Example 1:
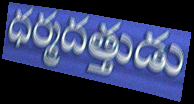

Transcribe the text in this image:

ధర్మదత్తుడు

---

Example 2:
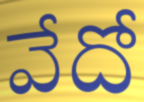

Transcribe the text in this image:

వేదో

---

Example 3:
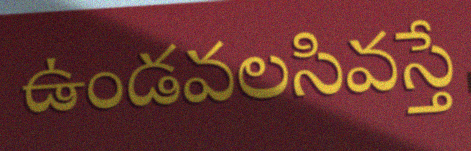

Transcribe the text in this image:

ఉండవలసివస్తే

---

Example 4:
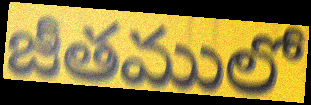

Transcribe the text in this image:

జీతములో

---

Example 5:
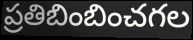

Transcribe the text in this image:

ప్రతిబింబించగల